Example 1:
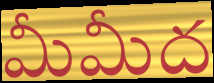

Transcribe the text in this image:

మీమీద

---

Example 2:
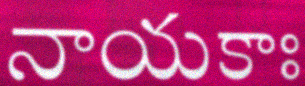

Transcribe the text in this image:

నాయకాః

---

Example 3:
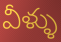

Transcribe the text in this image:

వీళ్ళు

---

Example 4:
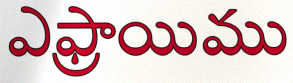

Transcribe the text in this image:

ఎఫ్రాయిము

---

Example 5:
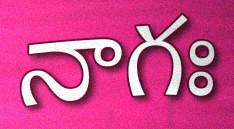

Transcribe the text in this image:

నాగః